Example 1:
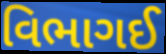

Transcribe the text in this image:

વિભાગઈ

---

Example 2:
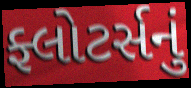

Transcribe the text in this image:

ફ્લોટર્સનું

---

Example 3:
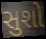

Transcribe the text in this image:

સુશો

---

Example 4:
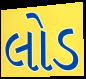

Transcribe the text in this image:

લોડ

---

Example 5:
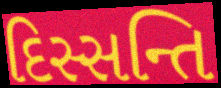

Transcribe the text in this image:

દિસ્સન્તિ